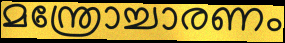
മന്ത്രോച്ചാരണം